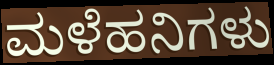
ಮಳೆಹನಿಗಳು